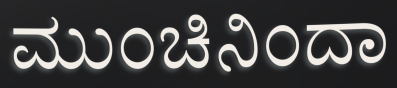
ಮುಂಚಿನಿಂದಾ